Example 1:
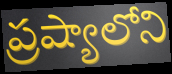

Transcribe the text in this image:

ప్రష్యాలోని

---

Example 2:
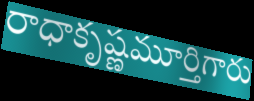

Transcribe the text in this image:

రాధాకృష్ణమూర్తిగారు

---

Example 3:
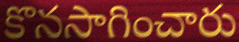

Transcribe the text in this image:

కొనసాగించారు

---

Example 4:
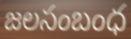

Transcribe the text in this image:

జలసంబంధ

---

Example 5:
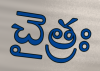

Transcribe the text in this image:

చైత్రః